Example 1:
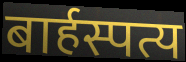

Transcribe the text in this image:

बार्हस्पत्य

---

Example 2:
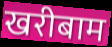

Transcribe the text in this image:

खरीबाम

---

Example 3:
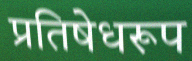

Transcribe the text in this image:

प्रतिषेधरूप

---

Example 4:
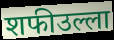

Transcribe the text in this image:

शफीउल्ला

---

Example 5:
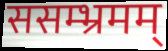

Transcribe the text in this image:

ससम्भ्रमम्